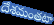
దేశమంతటా